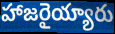
హాజరైయ్యారు